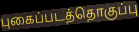
புகைப்படத்தொகுப்பு